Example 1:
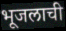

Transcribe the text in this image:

भूजलाची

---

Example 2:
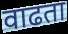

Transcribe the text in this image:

वाढता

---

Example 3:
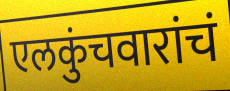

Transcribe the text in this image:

एलकुंचवारांचं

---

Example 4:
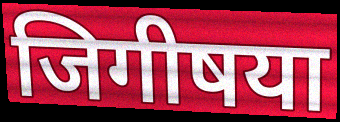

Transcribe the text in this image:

जिगीषया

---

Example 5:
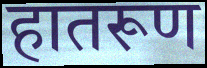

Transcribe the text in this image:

हातरूण